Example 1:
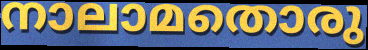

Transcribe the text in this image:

നാലാമതൊരു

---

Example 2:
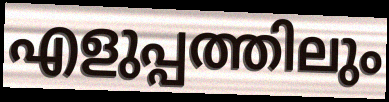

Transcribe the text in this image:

എളുപ്പത്തിലും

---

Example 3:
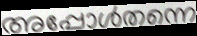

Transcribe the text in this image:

അപ്പോൾതന്നെ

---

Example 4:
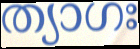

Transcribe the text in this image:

ത്യാഗഃ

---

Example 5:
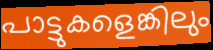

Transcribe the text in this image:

പാട്ടുകളെങ്കിലും